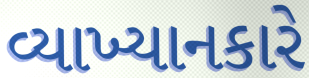
વ્યાખ્યાનકારે